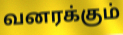
வனரக்கும்